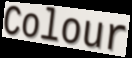
Colour